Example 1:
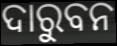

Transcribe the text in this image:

ଦାରୁବନ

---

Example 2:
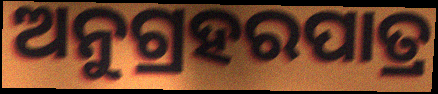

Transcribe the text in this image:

ଅନୁଗ୍ରହରପାତ୍ର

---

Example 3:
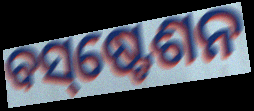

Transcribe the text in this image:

ବସ୍‌ଷ୍ଟେଶନ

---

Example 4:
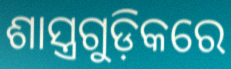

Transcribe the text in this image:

ଶାସ୍ତ୍ରଗୁଡ଼ିକରେ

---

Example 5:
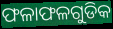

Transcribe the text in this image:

ଫଳାଫଳଗୁଡିକ